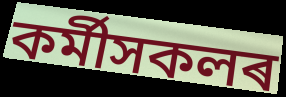
কৰ্মীসকলৰ